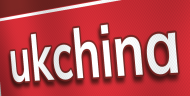
ukchina